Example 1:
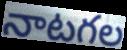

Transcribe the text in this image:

నాటగల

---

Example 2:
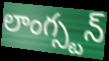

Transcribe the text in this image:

లాంగ్స్టన్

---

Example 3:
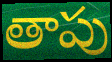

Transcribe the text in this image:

తాపు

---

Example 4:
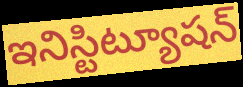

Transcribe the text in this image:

ఇనిస్టిట్యూషన్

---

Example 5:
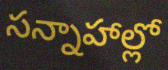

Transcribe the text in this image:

సన్నాహాల్లో